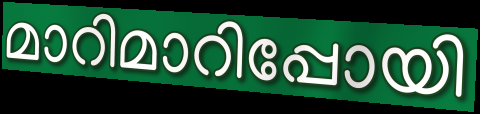
മാറിമാറിപ്പോയി